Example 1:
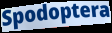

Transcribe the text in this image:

Spodoptera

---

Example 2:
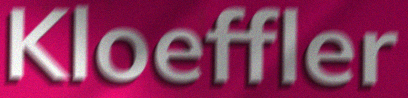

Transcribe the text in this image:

Kloeffler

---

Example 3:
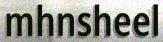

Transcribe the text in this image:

mhnsheel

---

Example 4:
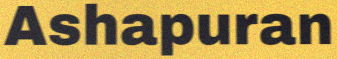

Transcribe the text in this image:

Ashapuran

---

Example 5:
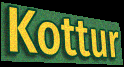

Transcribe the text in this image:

Kottur